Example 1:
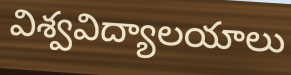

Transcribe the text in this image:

విశ్వవిద్యాలయాలు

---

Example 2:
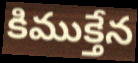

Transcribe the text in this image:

కిముక్తేన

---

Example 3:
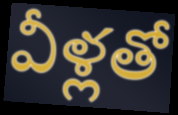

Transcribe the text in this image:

వీళ్లతో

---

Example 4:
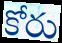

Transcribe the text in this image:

కోరు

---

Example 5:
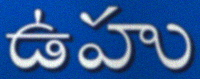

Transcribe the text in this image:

ఉహు